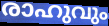
രാഹുവും